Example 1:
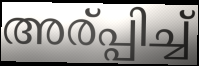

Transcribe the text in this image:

അര്പ്പിച്ച്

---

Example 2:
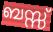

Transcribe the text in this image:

ബസ്സ്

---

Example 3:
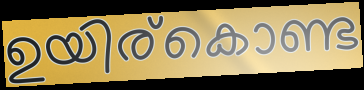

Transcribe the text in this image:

ഉയിര്കൊണ്ട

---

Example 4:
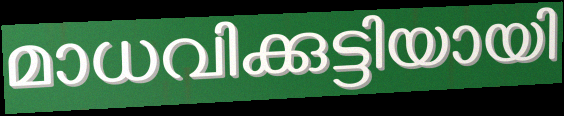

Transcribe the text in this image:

മാധവിക്കുട്ടിയായി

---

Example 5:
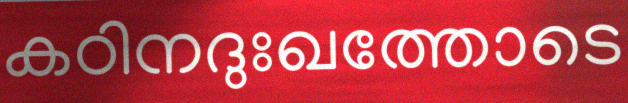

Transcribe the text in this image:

കഠിനദുഃഖത്തോടെ